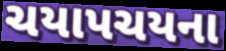
ચયાપચયના